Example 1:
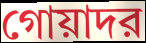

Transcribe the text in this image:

গোয়াদর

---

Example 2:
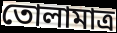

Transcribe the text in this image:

তোলামাত্র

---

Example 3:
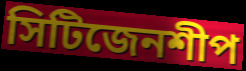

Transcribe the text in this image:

সিটিজেনশীপ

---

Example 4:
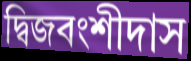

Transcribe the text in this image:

দ্বিজবংশীদাস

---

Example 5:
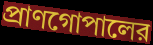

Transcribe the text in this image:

প্রাণগোপালের